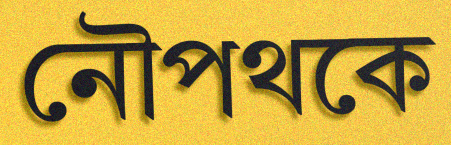
নৌপথকে